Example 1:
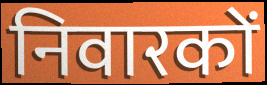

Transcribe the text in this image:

निवारकों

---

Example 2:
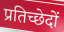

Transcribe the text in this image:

प्रतिच्छेदों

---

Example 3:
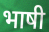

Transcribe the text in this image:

भाषी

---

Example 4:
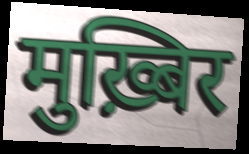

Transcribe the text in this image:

मुख़्बिर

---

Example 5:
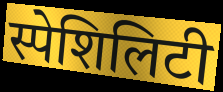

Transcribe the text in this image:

स्पेशिलिटी